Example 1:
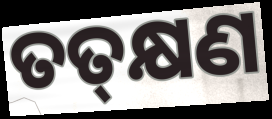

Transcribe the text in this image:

ତତ୍‌କ୍ଷଣ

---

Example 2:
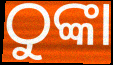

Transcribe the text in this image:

ଠୁଙ୍କା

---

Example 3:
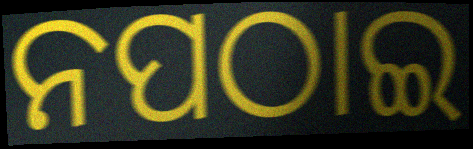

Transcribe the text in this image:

ନପଠାଇ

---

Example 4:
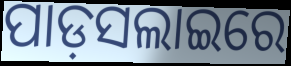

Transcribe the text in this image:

ପାଡ଼ସଲାଇରେ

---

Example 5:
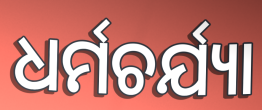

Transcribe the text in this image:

ଧର୍ମଚର୍ଯ୍ୟା